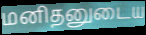
மனிதனுடைய